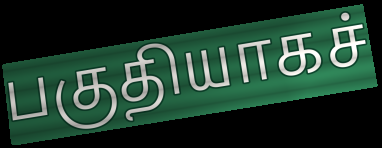
பகுதியாகச்